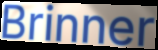
Brinner